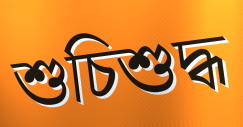
শুচিশুদ্ধ